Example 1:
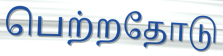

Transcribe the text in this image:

பெற்றதோடு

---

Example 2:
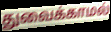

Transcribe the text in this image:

துவைக்காமல்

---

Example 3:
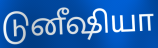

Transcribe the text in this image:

டுனீஷியா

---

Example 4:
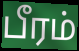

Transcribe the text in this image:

பீரம்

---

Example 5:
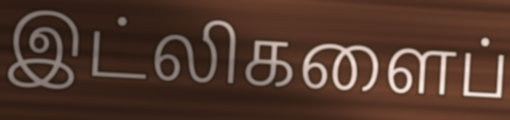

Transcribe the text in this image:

இட்லிகளைப்